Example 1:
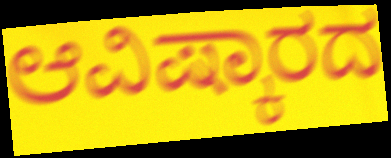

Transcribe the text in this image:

ಆವಿಷ್ಕಾರದ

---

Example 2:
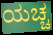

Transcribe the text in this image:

ಯಚ್ಚ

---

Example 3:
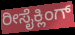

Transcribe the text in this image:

ರೀಸೈಕ್ಲಿಂಗ್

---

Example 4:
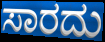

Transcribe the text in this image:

ಸಾರದು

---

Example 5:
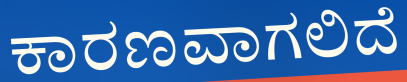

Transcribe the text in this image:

ಕಾರಣವಾಗಲಿದೆ